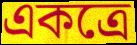
একত্ৰে